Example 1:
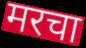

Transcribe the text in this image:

मरचा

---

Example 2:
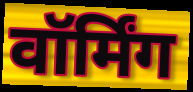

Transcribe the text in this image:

वॉर्मिंग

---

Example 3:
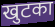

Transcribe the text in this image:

खुटका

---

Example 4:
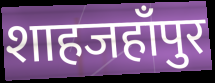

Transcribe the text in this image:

शाहजहाँपुर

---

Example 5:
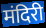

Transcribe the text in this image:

मंदिरी